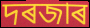
দৰজাৰ